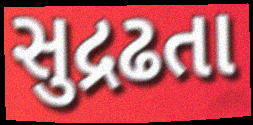
સુદ્રઢતા